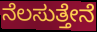
ನೆಲಸುತ್ತೇನೆ